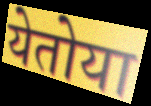
येतोया